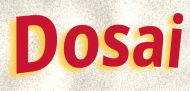
Dosai